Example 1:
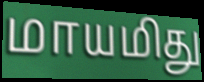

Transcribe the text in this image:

மாயமிது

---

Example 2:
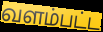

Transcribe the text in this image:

வளம்பட்ட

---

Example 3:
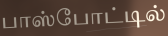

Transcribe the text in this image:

பாஸ்போட்டில்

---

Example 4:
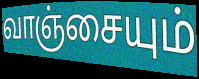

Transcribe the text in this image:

வாஞ்சையும்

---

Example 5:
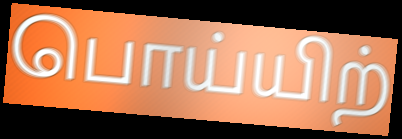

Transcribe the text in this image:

பொய்யிற்